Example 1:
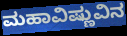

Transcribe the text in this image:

ಮಹಾವಿಷ್ಣುವಿನ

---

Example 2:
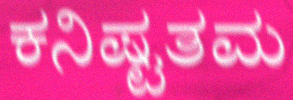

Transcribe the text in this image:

ಕನಿಷ್ಟತಮ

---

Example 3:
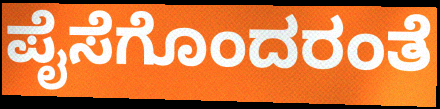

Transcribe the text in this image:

ಪೈಸೆಗೊಂದರಂತೆ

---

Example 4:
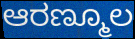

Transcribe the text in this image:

ಆರಣ್ಮೂಲ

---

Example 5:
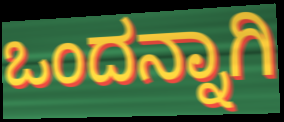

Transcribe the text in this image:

ಒಂದನ್ನಾಗಿ